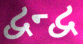
દ્વન્દ્વ